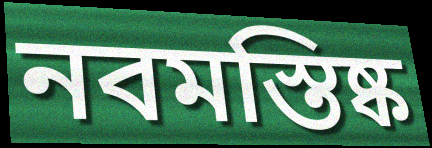
নবমস্তিষ্ক